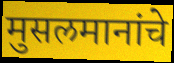
मुसलमानांचे